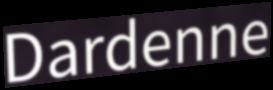
Dardenne